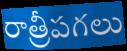
రాత్రీపగలు